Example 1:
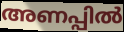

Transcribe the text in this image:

അണപ്പിൽ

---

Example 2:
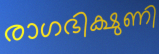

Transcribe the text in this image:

രാഗഭിക്ഷുണി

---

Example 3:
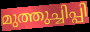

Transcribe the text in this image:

മുത്തുച്ചിപ്പി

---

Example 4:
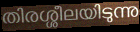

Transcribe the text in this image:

തിരശ്ശീലയിടുന്നു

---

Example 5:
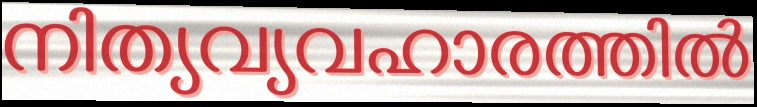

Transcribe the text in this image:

നിത്യവ്യവഹാരത്തിൽ